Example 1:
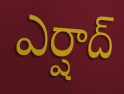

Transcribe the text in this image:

ఎర్షాద్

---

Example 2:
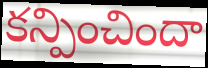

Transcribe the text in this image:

కన్పించిందా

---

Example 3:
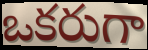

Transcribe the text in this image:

ఒకరుగా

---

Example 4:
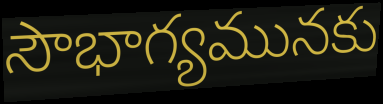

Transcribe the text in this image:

సౌభాగ్యమునకు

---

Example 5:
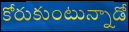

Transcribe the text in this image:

కోరుకుంటున్నాడో